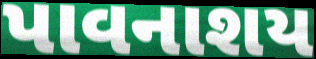
પાવનાશય